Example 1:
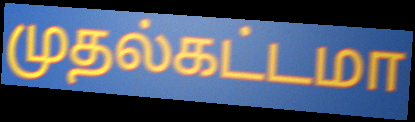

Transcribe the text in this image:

முதல்கட்டமா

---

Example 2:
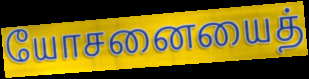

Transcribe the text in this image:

யோசனையைத்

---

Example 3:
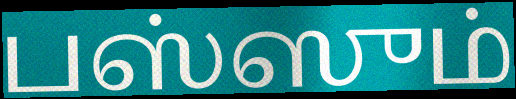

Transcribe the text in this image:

பஸ்ஸும்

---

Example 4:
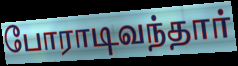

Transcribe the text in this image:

போராடிவந்தார்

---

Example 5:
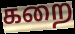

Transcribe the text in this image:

கறை